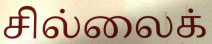
சில்லைக்